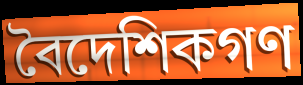
বৈদেশিকগণ